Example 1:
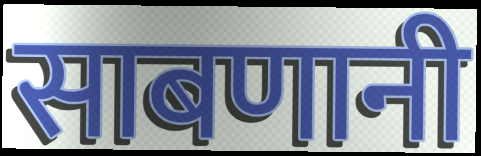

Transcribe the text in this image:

साबणानी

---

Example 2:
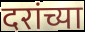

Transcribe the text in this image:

दरांच्या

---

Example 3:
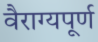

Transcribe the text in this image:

वैराग्यपूर्ण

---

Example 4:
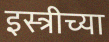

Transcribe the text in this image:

इस्त्रीच्या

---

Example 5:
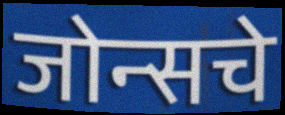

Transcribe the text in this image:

जोन्सचे